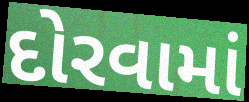
દોરવામાં